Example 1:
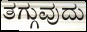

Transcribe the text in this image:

ತಗ್ಗುವುದು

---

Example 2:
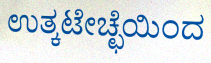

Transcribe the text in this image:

ಉತ್ಕಟೇಚ್ಛೆಯಿಂದ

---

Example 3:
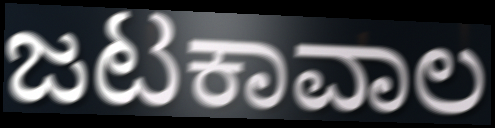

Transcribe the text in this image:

ಜಟಕಾವಾಲ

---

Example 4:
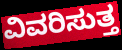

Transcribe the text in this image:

ವಿವರಿಸುತ್ತ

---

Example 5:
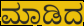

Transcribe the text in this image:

ಮಾಡಿದ